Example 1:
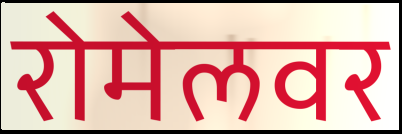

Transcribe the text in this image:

रोमेलवर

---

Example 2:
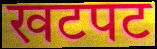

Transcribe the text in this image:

खटपट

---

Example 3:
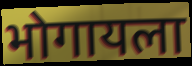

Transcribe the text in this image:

भोगायला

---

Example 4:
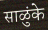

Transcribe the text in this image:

साळुंके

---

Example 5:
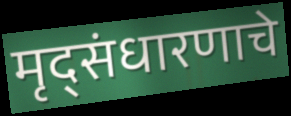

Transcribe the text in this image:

मृद्संधारणाचे